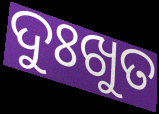
ଦୁଃଖୁତ